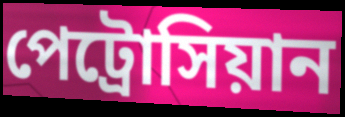
পেট্রোসিয়ান